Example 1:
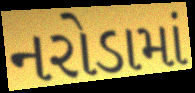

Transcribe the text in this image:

નરોડામાં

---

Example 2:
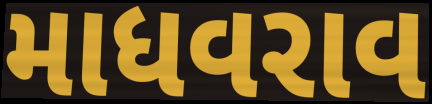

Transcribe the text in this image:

માધવરાવ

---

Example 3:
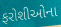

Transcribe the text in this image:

ફરોશીઓના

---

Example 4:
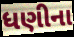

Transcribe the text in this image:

ધણીના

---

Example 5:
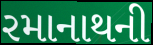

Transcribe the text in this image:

રમાનાથની